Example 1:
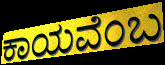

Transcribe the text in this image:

ಕಾಯವೆಂಬ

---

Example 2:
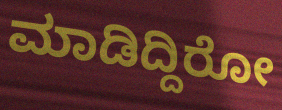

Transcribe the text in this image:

ಮಾಡಿದ್ದಿರೋ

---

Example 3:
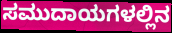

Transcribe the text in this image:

ಸಮುದಾಯಗಳಲ್ಲಿನ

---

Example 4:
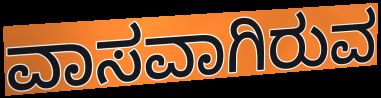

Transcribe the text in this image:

ವಾಸವಾಗಿರುವ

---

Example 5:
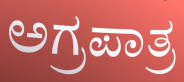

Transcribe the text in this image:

ಅಗ್ರಪಾತ್ರ